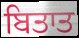
ਬਿਤਾਤ